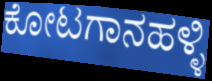
ಕೋಟಗಾನಹಳ್ಳಿ